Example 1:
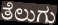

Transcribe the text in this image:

ತೆಲುಗು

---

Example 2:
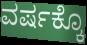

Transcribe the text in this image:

ವರ್ಷಕ್ಕೊ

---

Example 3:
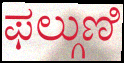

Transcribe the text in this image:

ಫಲ್ಗುಣಿ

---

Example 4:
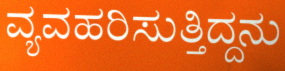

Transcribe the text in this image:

ವ್ಯವಹರಿಸುತ್ತಿದ್ದನು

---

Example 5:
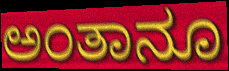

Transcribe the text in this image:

ಅಂತಾನೂ